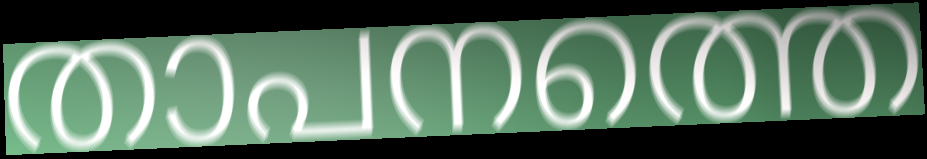
താപനത്തെ